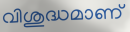
വിശുദ്ധമാണ്